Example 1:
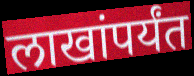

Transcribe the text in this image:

लाखांपर्यंत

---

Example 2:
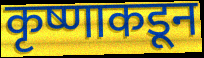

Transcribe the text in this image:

कृष्णाकडून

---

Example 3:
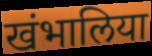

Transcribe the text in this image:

खंभालिया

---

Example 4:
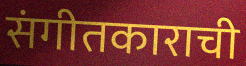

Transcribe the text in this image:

संगीतकाराची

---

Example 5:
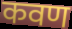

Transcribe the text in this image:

कवण